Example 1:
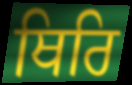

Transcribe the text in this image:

ਥਿਰਿ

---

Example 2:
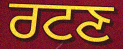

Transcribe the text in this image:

ਰਟਣ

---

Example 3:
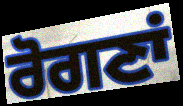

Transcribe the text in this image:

ਰੋਗਣਾਂ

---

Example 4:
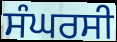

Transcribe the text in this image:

ਸੰਘਰਸੀ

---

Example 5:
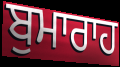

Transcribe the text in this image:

ਬੁਮਾਰਾਹ